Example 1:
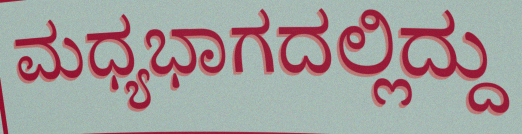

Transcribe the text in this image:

ಮಧ್ಯಭಾಗದಲ್ಲಿದ್ದು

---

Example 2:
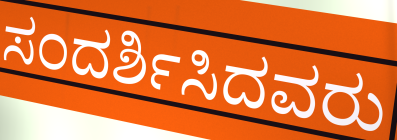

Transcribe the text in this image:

ಸಂದರ್ಶಿಸಿದವರು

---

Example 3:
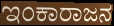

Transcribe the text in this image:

ಇಂಕಾರಾಜನ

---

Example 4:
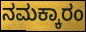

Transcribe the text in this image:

ನಮಕ್ಕಾರಂ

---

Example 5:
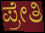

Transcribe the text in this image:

ಪ್ರೇತಿ